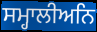
ਸਮ੍ਹਾਲੀਅਨਿ